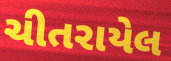
ચીતરાયેલ